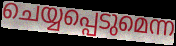
ചെയ്യപ്പെടുമെന്ന